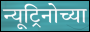
न्यूट्रिनोच्या